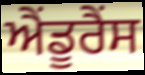
ਐਂਡੂਰੈਂਸ